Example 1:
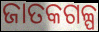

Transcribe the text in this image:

ଜାତକଗଳ୍ପ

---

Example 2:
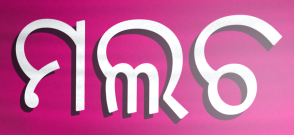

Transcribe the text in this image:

ମଲଚ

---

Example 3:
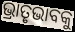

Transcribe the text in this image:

ଭ୍ରାତୃଭାବକୁ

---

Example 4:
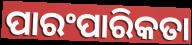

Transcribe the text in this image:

ପାରଂପାରିକତା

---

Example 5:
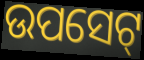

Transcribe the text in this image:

ଉପସେଟ୍